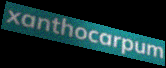
xanthocarpum